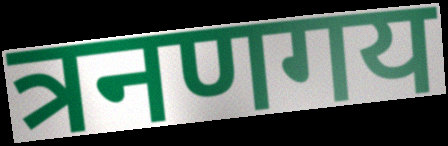
त्रनणगय